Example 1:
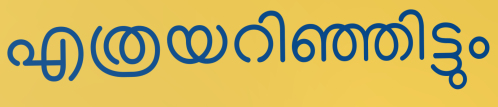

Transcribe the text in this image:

എത്രയറിഞ്ഞിട്ടും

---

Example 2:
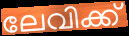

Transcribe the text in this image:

ലേവിക്ക്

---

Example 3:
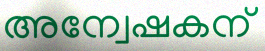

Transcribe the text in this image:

അന്വേഷകന്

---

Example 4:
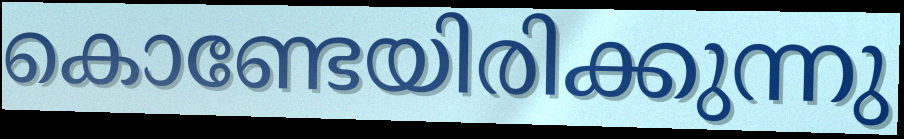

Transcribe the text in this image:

കൊണ്ടേയിരിക്കുന്നു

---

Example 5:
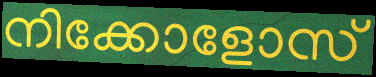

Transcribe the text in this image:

നിക്കോളോസ്